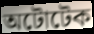
অটোটেক